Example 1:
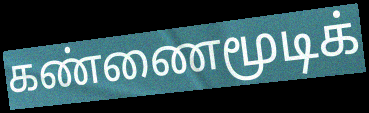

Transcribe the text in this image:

கண்ணைமூடிக்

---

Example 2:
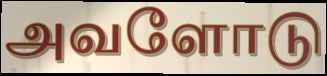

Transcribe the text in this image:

அவளோடு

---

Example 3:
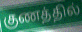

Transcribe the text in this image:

குணத்தில்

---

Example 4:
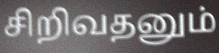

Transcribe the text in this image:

சிறிவதனும்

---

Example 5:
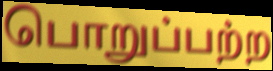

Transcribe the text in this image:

பொறுப்பற்ற